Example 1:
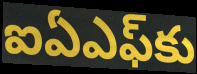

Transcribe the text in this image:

ఐఏఎఫ్‌కు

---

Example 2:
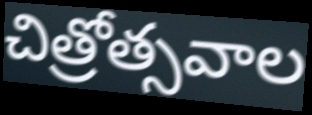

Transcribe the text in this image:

చిత్రోత్సవాల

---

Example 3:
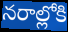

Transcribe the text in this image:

నరాల్లోకి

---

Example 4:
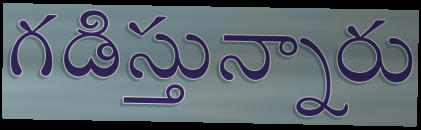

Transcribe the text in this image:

గడిస్తున్నారు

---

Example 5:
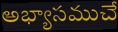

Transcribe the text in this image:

అభ్యాసముచే